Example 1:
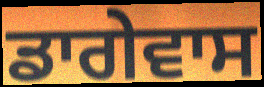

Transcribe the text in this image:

ਡਾਗੇਵਾਸ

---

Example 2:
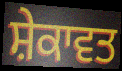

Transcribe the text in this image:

ਸ਼ੇਕਾਵਤ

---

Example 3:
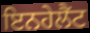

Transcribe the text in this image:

ਇਨਹੇਲੈਂਟ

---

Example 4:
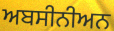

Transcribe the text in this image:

ਅਬਸੀਨੀਅਨ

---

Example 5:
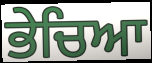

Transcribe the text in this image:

ਭੇਚਿਆ